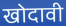
खोदावी